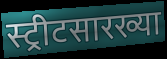
स्ट्रीटसारख्या